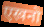
एखनो